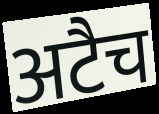
अटैच